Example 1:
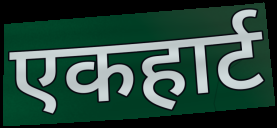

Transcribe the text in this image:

एकहार्ट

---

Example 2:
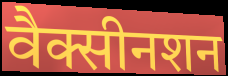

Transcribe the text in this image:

वैक्सीनशन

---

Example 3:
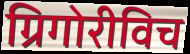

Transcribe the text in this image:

ग्रिगोरीविच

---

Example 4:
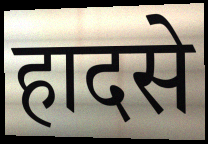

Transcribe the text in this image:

हादसे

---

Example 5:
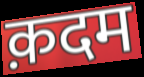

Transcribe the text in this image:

क़दम